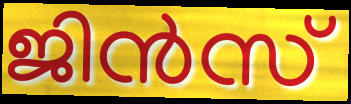
ജിൻസ്